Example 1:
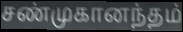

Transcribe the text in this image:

சண்முகானந்தம்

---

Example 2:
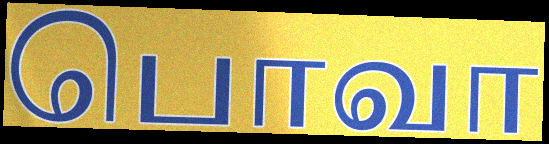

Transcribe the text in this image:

பொவா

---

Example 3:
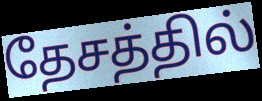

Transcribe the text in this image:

தேசத்தில்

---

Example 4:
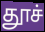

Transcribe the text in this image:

தூச்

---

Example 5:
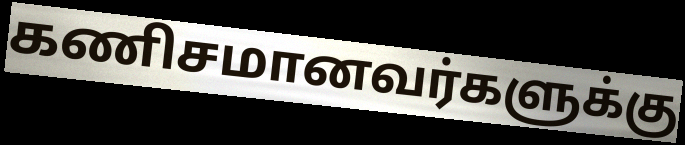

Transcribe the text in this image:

கணிசமானவர்களுக்கு